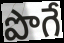
పొగే